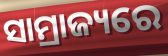
ସାମ୍ରାଜ୍ୟରେ